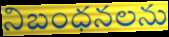
నిబంధనలను